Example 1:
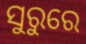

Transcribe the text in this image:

ସୁରୁରେ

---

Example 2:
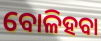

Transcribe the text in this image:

ବୋଳିହବା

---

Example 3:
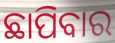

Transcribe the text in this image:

ଛାପିବାର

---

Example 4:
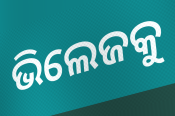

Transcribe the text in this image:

ଭିଲେଜକୁ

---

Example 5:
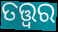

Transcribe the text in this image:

ତତ୍ତ୍ବର